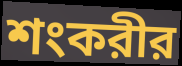
শংকরীর